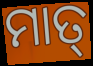
ମାତ୍